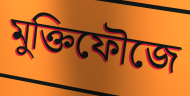
মুক্তিফৌজে